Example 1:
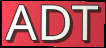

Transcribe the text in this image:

ADT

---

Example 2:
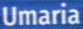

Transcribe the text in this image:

Umaria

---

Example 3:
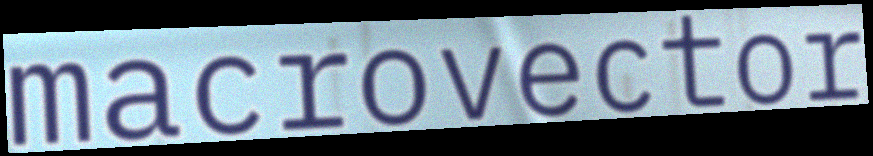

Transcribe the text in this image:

macrovector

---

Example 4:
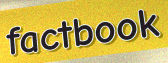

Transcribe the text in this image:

factbook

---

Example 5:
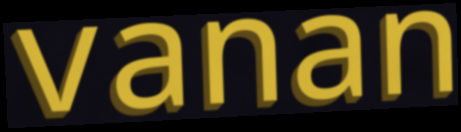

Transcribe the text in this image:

vanan